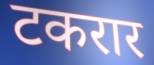
टकरार